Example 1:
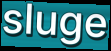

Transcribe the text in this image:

sluge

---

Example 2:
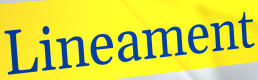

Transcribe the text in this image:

Lineament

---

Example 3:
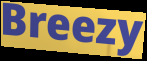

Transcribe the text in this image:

Breezy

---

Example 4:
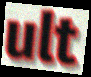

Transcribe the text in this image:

ult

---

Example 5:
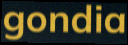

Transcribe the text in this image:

gondia